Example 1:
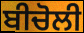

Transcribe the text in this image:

ਬੀਚੋਲੀ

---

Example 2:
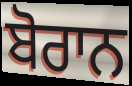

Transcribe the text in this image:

ਬੋਰਾਨ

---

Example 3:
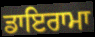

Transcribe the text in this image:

ਡਾਇਰਾਮਾ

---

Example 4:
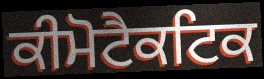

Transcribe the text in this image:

ਕੀਮੋਟੈਕਟਿਕ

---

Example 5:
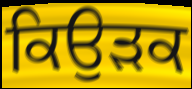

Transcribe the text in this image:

ਕਿਉੜਕ